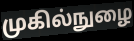
முகில்நுழை